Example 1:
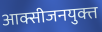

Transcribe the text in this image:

आक्सीजनयुक्त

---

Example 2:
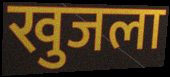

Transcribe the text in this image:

खुजला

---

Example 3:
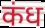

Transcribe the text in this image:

कंध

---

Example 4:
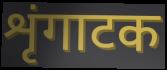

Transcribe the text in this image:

शृंगाटक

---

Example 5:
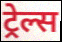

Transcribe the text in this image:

ट्रेल्स